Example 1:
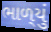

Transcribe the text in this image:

ભાળ્‌યું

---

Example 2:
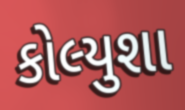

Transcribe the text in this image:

કોલ્યુશા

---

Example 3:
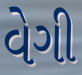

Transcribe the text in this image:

વેગી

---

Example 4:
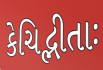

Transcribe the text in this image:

કેચિદ્ભીતાઃ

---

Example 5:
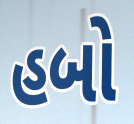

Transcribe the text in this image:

હબો